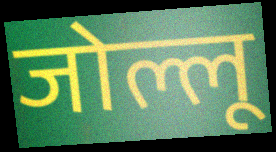
जोल्लू